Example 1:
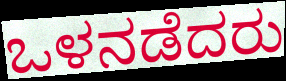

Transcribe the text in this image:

ಒಳನಡೆದರು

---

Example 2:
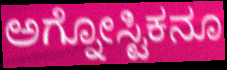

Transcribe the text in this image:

ಅಗ್ನೋಸ್ಟಿಕನೂ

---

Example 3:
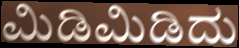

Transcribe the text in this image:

ಮಿಡಿಮಿಡಿದು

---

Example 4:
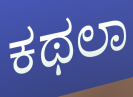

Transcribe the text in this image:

ಕಥಲಾ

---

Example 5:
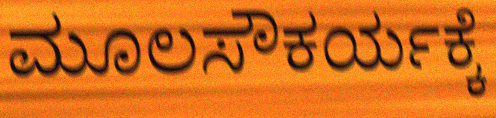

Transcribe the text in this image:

ಮೂಲಸೌಕರ್ಯಕ್ಕೆ